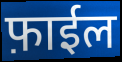
फ़ाईल